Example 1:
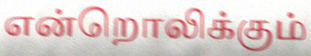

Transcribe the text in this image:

என்றொலிக்கும்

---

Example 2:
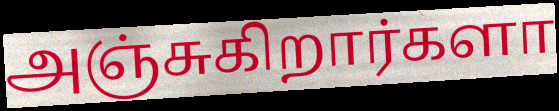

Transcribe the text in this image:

அஞ்சுகிறார்களா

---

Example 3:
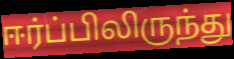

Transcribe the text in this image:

ஈர்ப்பிலிருந்து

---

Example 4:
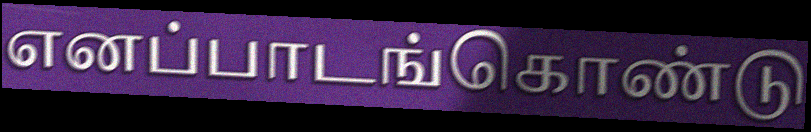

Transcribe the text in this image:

எனப்பாடங்கொண்டு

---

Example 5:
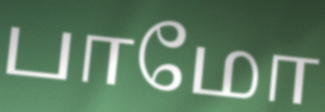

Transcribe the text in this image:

பாமோ